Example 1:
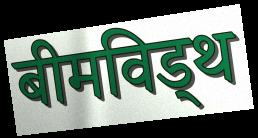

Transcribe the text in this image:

बीमविड्थ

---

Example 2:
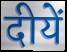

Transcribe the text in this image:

दीयें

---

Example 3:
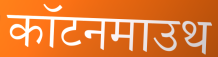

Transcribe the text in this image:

कॉटनमाउथ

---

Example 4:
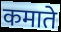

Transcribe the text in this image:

कमाते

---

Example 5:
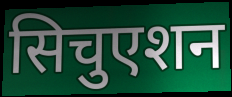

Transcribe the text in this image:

सिचुएशन